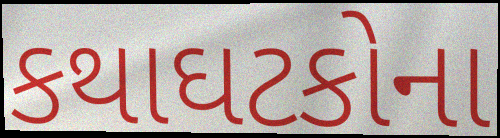
કથાઘટકોના